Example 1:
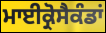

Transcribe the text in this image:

ਮਾਈਕ੍ਰੋਸੈਕੰਡਾਂ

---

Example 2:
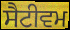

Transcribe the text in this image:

ਸੈਟੀਵਮ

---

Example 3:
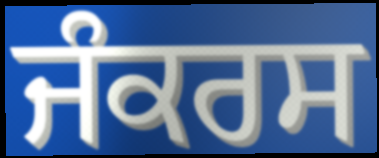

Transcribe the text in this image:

ਜੰਕਰਸ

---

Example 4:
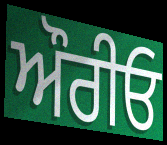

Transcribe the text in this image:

ਔਰੀਓ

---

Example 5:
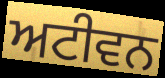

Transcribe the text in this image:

ਅਟੀਵਨ